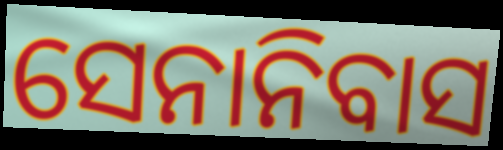
ସେନାନିବାସ